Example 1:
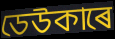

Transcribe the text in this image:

ডেউকাৰে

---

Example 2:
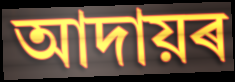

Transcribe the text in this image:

আদায়ৰ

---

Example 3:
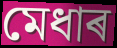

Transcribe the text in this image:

মেধাৰ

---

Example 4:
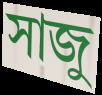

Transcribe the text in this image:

সাজু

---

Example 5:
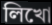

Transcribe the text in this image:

লিখো